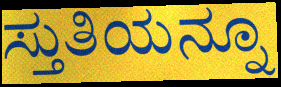
ಸ್ತುತಿಯನ್ನೂ